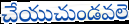
చేయుచుండవలె